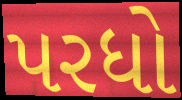
પરધો